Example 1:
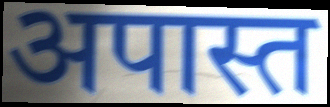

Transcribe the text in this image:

अपास्त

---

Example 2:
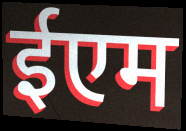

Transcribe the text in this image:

ईएम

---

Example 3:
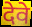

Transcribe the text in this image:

देवे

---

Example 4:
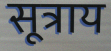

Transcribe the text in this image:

सूत्राय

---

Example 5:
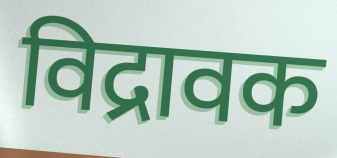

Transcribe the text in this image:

विद्रावक